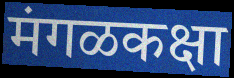
मंगळकक्षा